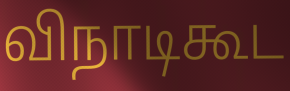
விநாடிகூட